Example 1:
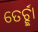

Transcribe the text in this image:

ତେର୍ଚ୍ଛା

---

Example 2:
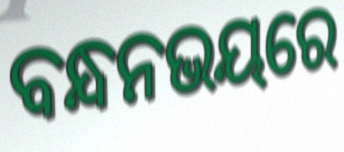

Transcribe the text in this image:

ବନ୍ଧନଭୟରେ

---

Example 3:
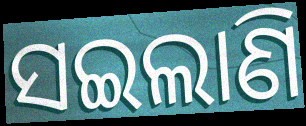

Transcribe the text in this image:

ସଇଲାଣି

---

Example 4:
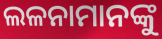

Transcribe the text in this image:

ଲଳନାମାନଙ୍କୁ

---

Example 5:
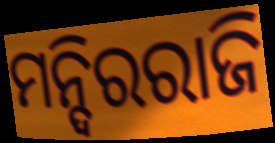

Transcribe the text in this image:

ମନ୍ଦିରରାଜି